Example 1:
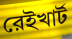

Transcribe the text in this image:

রেইখার্ট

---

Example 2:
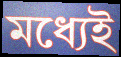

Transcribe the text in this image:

মধ্যেই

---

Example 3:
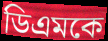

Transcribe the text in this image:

ডিএমকে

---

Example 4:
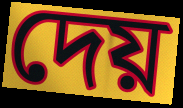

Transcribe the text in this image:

দেয়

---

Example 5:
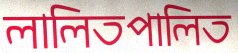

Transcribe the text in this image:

লালিতপালিত